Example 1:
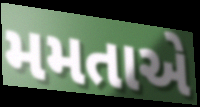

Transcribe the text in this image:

મમતાએ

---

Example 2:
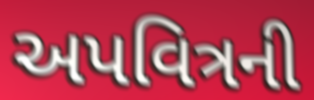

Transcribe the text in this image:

અપવિત્રની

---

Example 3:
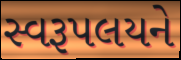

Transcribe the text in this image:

સ્વરૂપલયને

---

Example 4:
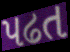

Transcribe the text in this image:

પઢત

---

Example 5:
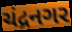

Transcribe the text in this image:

ચંદ્રનગર